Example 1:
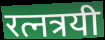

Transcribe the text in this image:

रत्नत्रयी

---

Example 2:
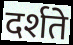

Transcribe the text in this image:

दर्शते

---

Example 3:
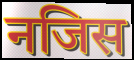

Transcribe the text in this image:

नजिस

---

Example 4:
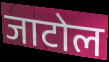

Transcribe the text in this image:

जाटोल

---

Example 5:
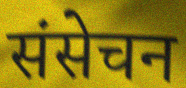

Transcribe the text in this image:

संसेचन